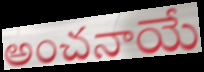
అంచనాయే